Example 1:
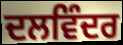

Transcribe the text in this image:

ਦਲਵਿੰਦਰ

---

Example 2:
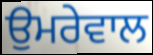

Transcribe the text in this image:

ਉਮਰੇਵਾਲ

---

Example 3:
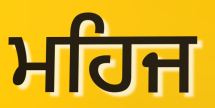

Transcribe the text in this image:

ਮਹਿਜ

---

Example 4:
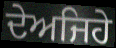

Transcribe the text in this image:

ਦੇਅਜਿਹੇ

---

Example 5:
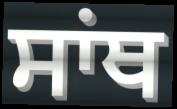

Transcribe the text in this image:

ਸਾਂਥ